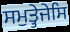
ਸਮੁਤ੍ਤੇਜੇਸਿ